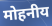
मोहनीय